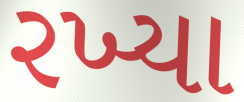
રખ્યા